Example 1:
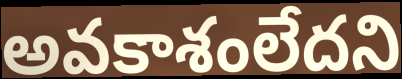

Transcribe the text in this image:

అవకాశంలేదని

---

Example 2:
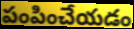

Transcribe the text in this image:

పంపించేయడం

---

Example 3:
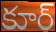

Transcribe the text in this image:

కూర్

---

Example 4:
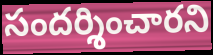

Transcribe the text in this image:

సందర్శించారని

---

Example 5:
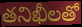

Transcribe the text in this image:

తనిఖీలతో